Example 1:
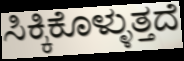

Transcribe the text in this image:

ಸಿಕ್ಕಿಕೊಳ್ಳುತ್ತದೆ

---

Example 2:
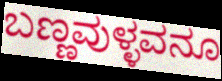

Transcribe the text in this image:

ಬಣ್ಣವುಳ್ಳವನೂ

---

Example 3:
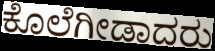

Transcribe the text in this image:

ಕೊಲೆಗೀಡಾದರು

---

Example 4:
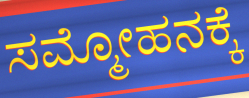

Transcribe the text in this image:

ಸಮ್ಮೋಹನಕ್ಕೆ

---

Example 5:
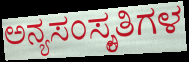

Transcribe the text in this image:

ಅನ್ಯಸಂಸ್ಕೃತಿಗಳ